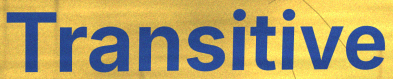
Transitive